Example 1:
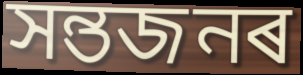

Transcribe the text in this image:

সন্তজনৰ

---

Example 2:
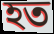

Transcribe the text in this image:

হত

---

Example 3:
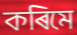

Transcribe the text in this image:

কৰিমে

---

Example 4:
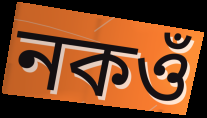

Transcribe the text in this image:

নকওঁ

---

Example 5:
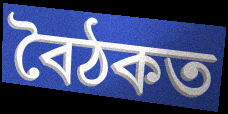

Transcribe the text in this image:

বৈঠকত